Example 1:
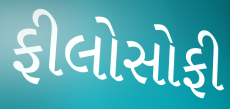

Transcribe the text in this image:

ફીલોસોફી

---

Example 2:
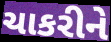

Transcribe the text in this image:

ચાકરીને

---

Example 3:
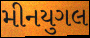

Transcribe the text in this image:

મીનયુગલ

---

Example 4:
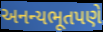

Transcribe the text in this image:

અનન્યભૂતપણે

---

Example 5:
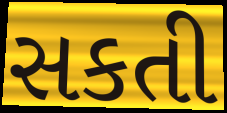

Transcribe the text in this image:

સકતી